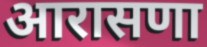
आरासणा